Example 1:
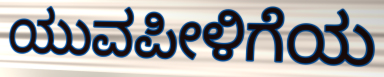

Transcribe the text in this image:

ಯುವಪೀಳಿಗೆಯ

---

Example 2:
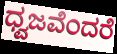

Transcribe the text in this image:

ಧ್ವಜವೆಂದರೆ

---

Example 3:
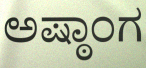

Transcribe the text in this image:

ಅಷ್ಠಾಂಗ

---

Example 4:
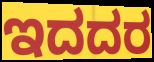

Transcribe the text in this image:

ಇದದರ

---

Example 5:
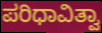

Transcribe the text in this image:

ಪರಿಧಾವಿತ್ವಾ